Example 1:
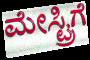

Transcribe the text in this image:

ಮೇಸ್ಟ್ರಿಗೆ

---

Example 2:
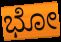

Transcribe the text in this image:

ಭೋ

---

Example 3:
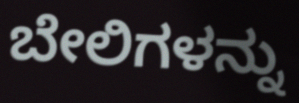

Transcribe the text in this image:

ಬೇಲಿಗಳನ್ನು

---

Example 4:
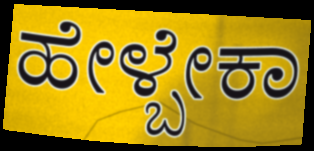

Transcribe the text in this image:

ಹೇಳ್ಬೇಕಾ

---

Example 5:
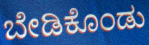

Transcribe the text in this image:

ಬೇಡಿಕೊಂಡು